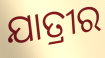
ଯାତ୍ରୀର